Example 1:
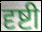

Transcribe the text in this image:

दृष्टी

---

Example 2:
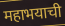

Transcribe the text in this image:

महाभयाची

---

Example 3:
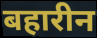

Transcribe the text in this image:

बहारीन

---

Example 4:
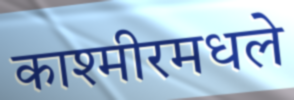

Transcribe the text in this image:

काश्‍मीरमधले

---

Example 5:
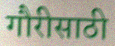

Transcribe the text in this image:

गौरीसाठी